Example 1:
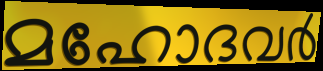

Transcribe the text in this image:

മഹോദവർ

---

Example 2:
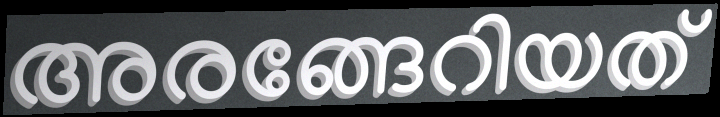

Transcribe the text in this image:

അരങ്ങേറിയത്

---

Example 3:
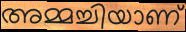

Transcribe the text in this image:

അമ്മച്ചിയാണ്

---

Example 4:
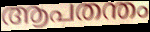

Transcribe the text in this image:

ആപതന്തം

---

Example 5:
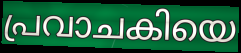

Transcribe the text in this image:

പ്രവാചകിയെ